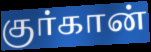
குர்கான்